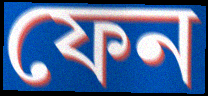
ফেন